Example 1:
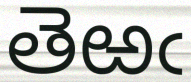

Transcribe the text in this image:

తెఱఁ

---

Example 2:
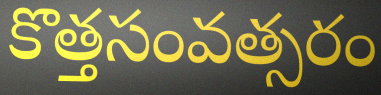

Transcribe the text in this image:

కొత్తసంవత్సరం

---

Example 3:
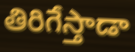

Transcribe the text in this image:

తిరిగేస్తాడా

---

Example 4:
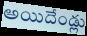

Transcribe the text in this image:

అయిదేండ్లు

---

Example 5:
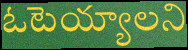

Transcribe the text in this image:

ఓటెయ్యాలని